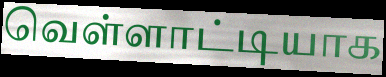
வெள்ளாட்டியாக